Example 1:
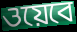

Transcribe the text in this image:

ওয়েবে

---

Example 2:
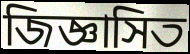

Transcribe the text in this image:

জিজ্ঞাসিত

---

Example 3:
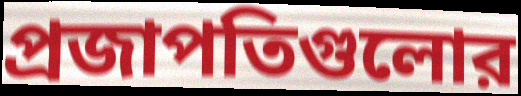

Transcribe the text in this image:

প্রজাপতিগুলোর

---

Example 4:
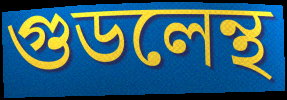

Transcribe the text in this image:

গুডলেন্থ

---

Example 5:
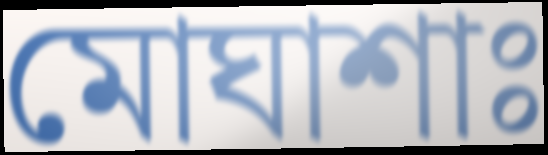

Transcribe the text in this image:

মোঘাশাঃ